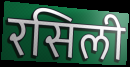
रसिली